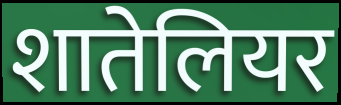
शातेलियर